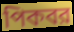
পিকবর